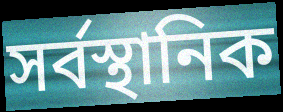
সর্বস্থানিক